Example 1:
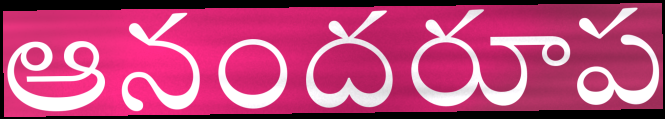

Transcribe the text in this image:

ఆనందరూప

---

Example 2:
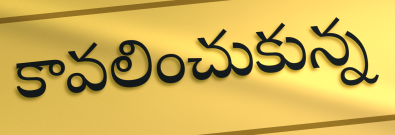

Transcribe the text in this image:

కావలించుకున్న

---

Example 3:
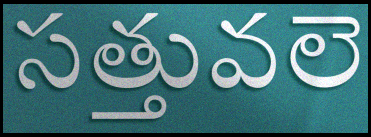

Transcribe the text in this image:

సత్తువలె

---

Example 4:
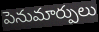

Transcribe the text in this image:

పెనుమార్పులు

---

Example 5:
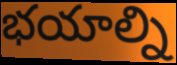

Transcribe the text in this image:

భయాల్ని